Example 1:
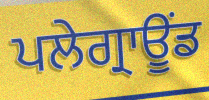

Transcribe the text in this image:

ਪਲੇਗ੍ਰਾਊਂਡ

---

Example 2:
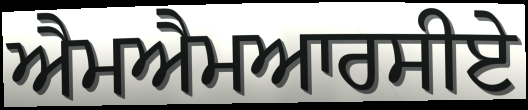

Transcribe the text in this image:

ਐਮਐਮਆਰਸੀਏ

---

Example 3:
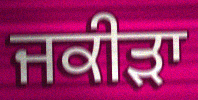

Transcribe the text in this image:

ਜਕੀੜਾ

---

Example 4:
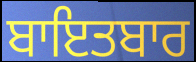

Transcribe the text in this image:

ਬਾਇਤਬਾਰ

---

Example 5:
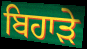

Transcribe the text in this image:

ਬਿਹਾੜੇ